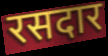
रसदार